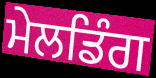
ਮੇਲਡਿੰਗ